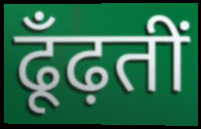
ढूँढ़तीं